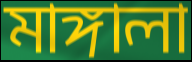
মাঙ্গালা